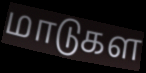
மாடுகள